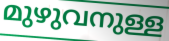
മുഴുവനുള്ള